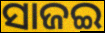
ସାଜଇ